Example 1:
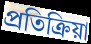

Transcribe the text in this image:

প্ৰতিক্ৰিয়া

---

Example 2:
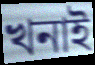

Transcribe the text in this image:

খনাই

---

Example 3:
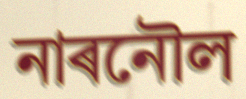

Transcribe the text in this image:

নাৰনৌল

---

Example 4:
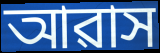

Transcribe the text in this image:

আৱাস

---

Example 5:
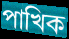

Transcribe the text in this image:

পাখিক